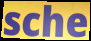
sche